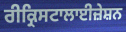
ਰੀਕ੍ਰਿਸਟਾਲਾਈਜ਼ੇਸ਼ਨ